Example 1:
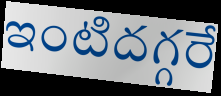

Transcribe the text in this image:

ఇంటిదగ్గరే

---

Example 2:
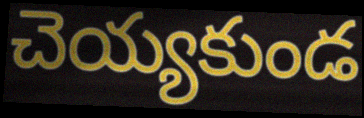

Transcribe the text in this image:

చెయ్యకుండ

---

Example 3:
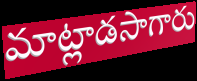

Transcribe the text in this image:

మాట్లాడసాగారు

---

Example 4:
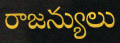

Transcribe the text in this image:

రాజన్యులు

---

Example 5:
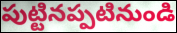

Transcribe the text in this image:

పుట్టినప్పటినుండి